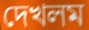
দেখলম